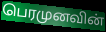
பெரமுனவின்